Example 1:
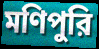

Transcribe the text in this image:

মণিপুরি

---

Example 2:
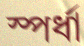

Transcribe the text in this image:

স্পর্ধা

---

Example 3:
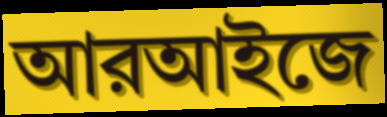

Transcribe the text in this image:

আরআইজে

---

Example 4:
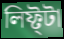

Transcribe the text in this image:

লিফ্ট্টা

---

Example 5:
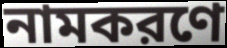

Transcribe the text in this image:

নামকরণে